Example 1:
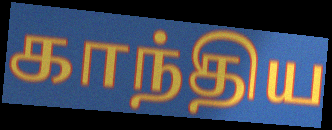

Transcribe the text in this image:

காந்திய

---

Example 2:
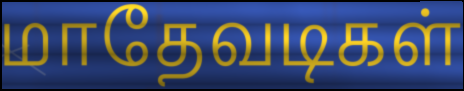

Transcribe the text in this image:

மாதேவடிகள்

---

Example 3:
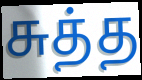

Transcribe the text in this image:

சுத்த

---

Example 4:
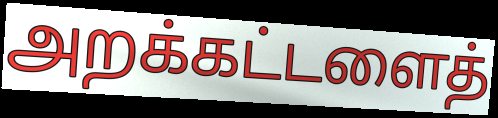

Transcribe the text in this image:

அறக்கட்டளைத்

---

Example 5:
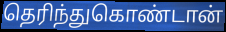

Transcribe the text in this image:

தெரிந்துகொண்டான்